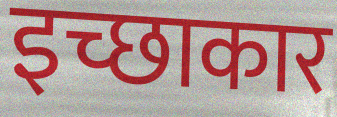
इच्छाकार